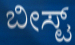
ಬೀಸ್ಟ್